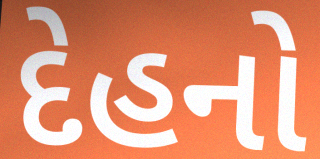
દેહનો